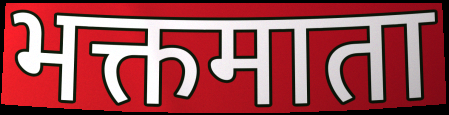
भक्तमाता